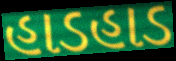
હાડહાડ